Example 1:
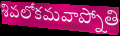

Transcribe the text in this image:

శివలోకమవాప్నోతి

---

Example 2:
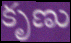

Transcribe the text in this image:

కృణు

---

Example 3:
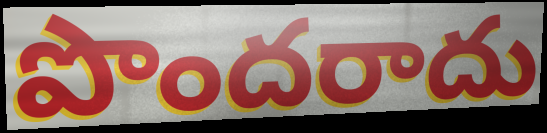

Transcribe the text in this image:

పొందరాదు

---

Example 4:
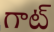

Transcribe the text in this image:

గాట్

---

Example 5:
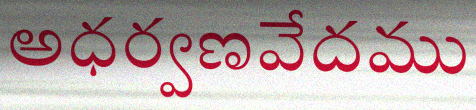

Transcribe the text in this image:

అధర్వణవేదము